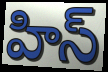
హిస్